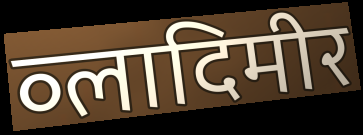
व्‍लादिमीर